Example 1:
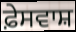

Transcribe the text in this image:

ਫ਼ੇਸਵਾਸ਼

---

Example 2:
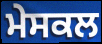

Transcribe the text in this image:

ਮੇਸਕਲ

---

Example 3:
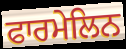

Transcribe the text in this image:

ਫਾਰਮੇਲਿਨ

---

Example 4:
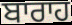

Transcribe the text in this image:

ਬਾਰਾਹ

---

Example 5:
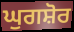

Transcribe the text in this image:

ਘੁਗਸ਼ੋਰ